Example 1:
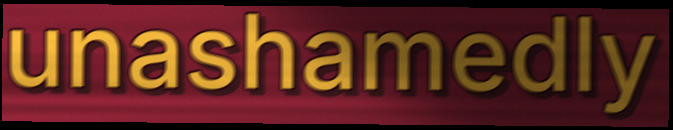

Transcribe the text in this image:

unashamedly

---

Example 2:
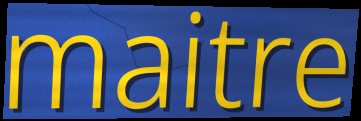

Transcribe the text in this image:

maitre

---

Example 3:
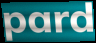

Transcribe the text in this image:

pard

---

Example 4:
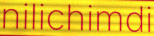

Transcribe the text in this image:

nilichimdi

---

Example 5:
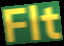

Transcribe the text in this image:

Flt